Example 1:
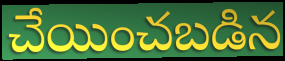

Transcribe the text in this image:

చేయించబడిన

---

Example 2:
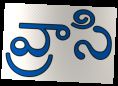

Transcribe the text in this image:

వ్రాసి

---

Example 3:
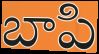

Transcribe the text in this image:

బాపి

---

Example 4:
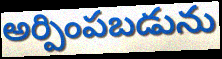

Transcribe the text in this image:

అర్పింపబడును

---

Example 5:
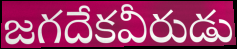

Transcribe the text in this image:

జగదేకవీరుడు